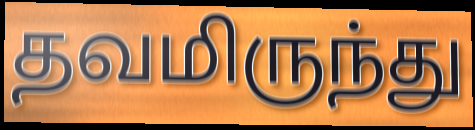
தவமிருந்து